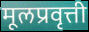
मूलप्रवृत्ती